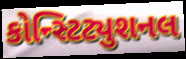
કોન્સ્ટિટ્યુશનલ